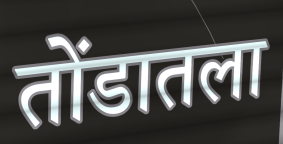
तोंडातला